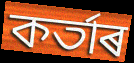
কৰ্তাৰ